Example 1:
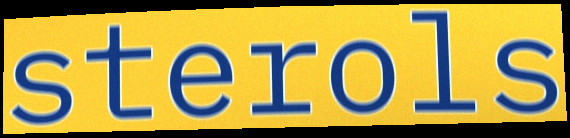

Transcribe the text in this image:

sterols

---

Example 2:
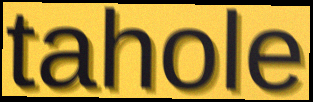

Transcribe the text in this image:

tahole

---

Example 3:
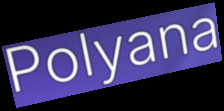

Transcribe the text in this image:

Polyana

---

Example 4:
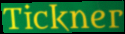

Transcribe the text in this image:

Tickner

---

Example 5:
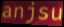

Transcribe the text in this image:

anjsu